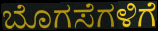
ಬೊಗಸೆಗಳಿಗೆ